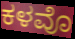
ಕಳವೊ